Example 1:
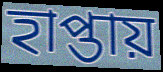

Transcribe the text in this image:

হাপ্তায়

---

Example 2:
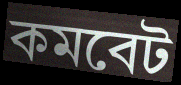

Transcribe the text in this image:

কমবেট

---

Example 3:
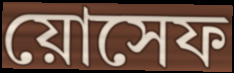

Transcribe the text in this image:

য়োসেফ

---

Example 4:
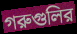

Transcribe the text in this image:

গরুগুলির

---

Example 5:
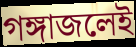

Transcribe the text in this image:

গঙ্গাজলেই